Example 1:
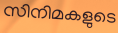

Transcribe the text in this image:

സിനിമകളുടെ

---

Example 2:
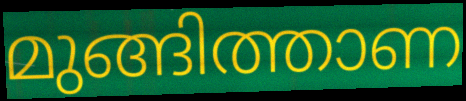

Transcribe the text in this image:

മുങ്ങിത്താണ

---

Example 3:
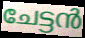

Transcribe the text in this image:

ചേട്ടൻ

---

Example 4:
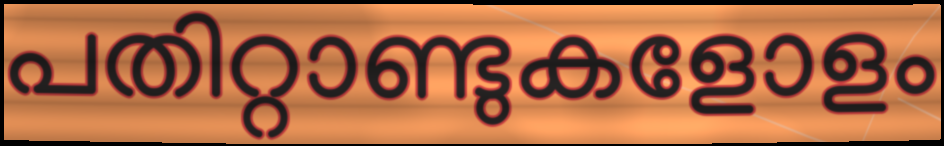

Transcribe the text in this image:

പതിറ്റാണ്ടുകളോളം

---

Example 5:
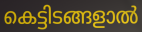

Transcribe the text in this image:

കെട്ടിടങ്ങളാൽ